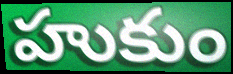
హుకుం